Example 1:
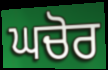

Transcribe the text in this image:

ਘਚੋਰ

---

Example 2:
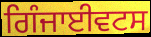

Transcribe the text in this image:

ਗਿੰਜਾਈਵਟਸ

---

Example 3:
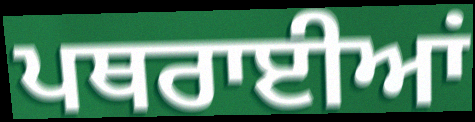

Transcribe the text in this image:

ਪਥਰਾਈਆਂ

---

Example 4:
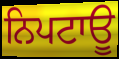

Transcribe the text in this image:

ਨਿਪਟਾਊ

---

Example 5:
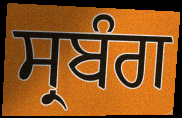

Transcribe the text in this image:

ਸ੍ਰਬੰਗ